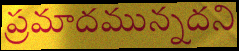
ప్రమాదమున్నదని